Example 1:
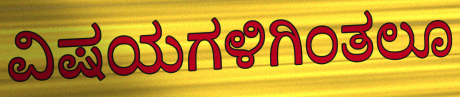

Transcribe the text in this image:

ವಿಷಯಗಳಿಗಿಂತಲೂ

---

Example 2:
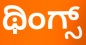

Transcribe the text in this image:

ಥಿಂಗ್ಸ್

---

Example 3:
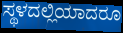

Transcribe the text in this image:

ಸ್ಥಳದಲ್ಲಿಯಾದರೂ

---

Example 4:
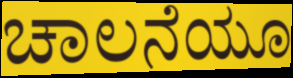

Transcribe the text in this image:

ಚಾಲನೆಯೂ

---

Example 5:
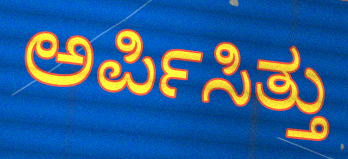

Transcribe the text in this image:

ಅರ್ಪಿಸಿತ್ತು